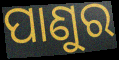
ପାଣୁର